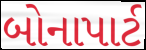
બોનાપાર્ટ